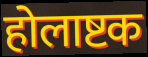
होलाष्टक